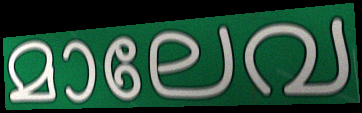
മാലേവ